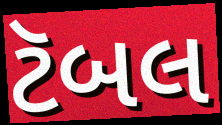
ટૅબલ